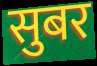
सुबर